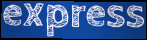
express